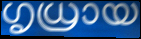
ഗൃധ്രായ